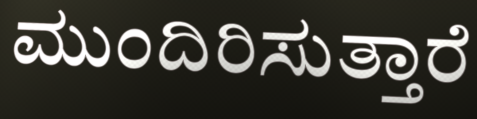
ಮುಂದಿರಿಸುತ್ತಾರೆ